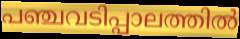
പഞ്ചവടിപ്പാലത്തിൽ